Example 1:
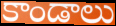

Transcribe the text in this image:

కాండాలు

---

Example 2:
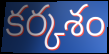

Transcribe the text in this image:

కర్కశం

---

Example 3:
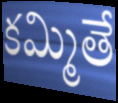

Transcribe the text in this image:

కమ్మితే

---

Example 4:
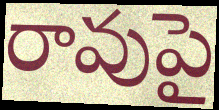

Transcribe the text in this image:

రావుపై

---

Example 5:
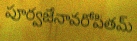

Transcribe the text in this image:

పూర్వజేనావరోపితమ్